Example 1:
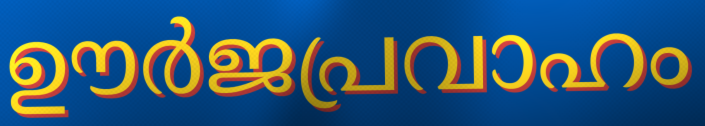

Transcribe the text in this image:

ഊർജപ്രവാഹം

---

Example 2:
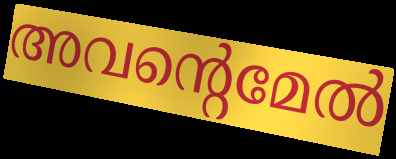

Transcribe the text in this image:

അവന്റെമേൽ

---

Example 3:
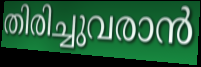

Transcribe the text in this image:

തിരിച്ചുവരാൻ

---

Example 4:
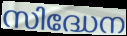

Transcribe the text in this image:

സിദ്ധേന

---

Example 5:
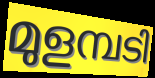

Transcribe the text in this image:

മുളമ്പടി